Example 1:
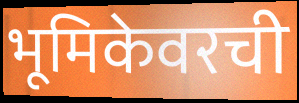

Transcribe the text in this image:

भूमिकेवरची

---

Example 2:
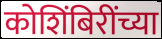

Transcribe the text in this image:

कोशिंबिरींच्या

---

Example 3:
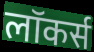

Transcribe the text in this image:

लॉकर्स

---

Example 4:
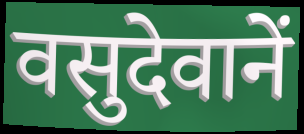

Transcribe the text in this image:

वसुदेवानें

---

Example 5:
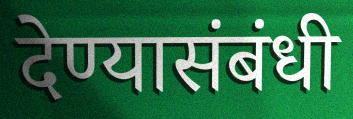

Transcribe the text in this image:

देण्यासंबंधी